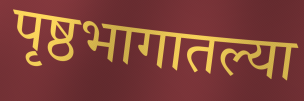
पृष्ठभागातल्या